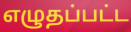
எழுதப்பட்ட